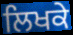
ਲਿਖਕੇ